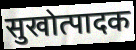
सुखोत्पादक